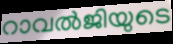
റാവൽജിയുടെ